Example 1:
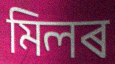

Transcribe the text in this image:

মিলৰ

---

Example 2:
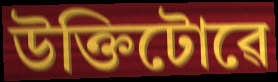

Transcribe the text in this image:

উক্তিটোৱে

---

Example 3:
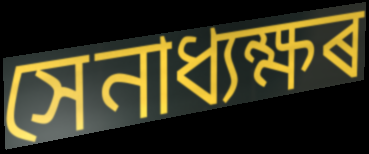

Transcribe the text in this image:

সেনাধ্যক্ষৰ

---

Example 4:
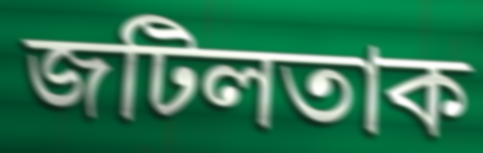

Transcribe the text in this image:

জটিলতাক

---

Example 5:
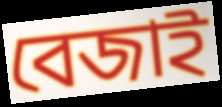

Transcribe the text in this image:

বেজাই